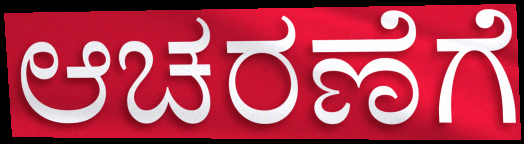
ಆಚರಣೆಗೆ